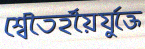
শ্বেতৈর্হয়ৈর্যুক্তে